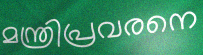
മന്ത്രിപ്രവരനെ